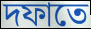
দফাতে